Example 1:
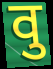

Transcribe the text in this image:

वु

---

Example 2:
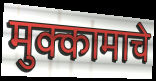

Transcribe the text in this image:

मुक्कामाचे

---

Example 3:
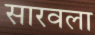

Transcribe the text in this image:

सारवला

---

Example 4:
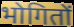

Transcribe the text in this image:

भोगितों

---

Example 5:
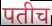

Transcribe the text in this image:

पतीच